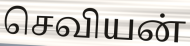
செவியன்